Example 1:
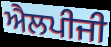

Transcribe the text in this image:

ਐਲਪੀਜੀ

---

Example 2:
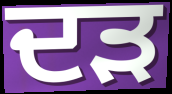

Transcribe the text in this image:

ਦੜ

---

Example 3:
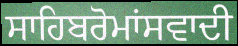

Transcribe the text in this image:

ਸਾਹਿਬਰੋਮਾਂਸਵਾਦੀ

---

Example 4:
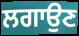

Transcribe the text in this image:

ਲਗਾਉਣ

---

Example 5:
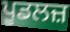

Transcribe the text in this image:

ਪੂਡਲਜ਼